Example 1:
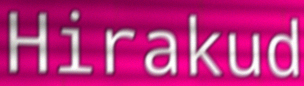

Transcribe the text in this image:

Hirakud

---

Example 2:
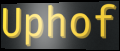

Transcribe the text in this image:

Uphof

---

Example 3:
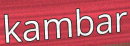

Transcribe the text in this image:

kambar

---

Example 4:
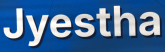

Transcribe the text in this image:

Jyestha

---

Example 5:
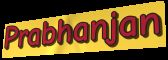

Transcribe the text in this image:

Prabhanjan